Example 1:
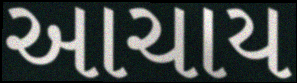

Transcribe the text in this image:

આચાય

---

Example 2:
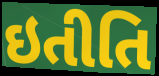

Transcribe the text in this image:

ઇતીતિ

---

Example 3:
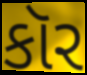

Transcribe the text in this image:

કૉર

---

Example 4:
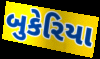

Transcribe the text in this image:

બુકેરિયા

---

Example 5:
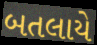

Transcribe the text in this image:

બતલાયે